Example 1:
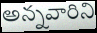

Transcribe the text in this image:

అన్నవారిని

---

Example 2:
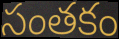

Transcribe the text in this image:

సంతకం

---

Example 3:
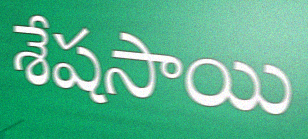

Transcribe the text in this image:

శేషసాయి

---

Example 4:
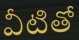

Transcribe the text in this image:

వీటితో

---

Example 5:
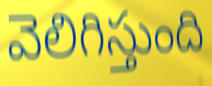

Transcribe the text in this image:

వెలిగిస్తుంది